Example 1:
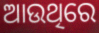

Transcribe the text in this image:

ଆଉଥିରେ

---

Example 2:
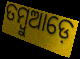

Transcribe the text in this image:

ତମ୍ବୁଆଡ଼େ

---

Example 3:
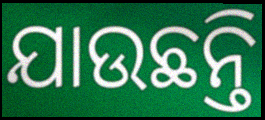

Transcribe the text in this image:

ଯାଉଛନ୍ତି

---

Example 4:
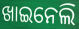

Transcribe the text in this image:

ଖାଇନେଲି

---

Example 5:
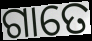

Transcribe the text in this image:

ଗାତେ